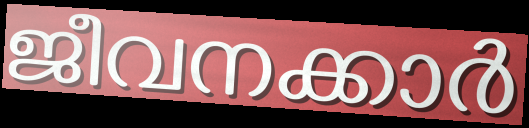
ജീവനക്കാർ